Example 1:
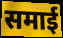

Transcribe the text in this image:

समाई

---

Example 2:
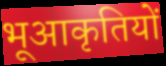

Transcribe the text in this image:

भूआकृतियों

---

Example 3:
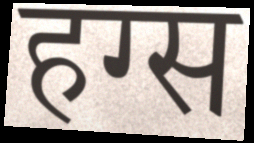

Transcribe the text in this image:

हग्स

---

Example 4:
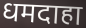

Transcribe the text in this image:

धमदाहा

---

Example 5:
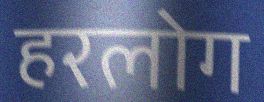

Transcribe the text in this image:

हरलोग